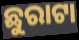
ଛୁରାଟା